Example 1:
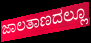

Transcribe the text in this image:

ಜಾಲತಾಣದಲ್ಲೂ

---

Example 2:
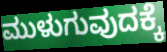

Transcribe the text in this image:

ಮುಳುಗುವುದಕ್ಕೆ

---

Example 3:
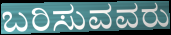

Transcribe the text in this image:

ಬರಿಸುವವರು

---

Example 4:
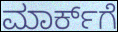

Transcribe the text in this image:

ಮಾರ್ಕ್‌ಗೆ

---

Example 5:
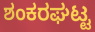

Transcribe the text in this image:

ಶಂಕರಘಟ್ಟ